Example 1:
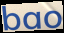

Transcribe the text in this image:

bao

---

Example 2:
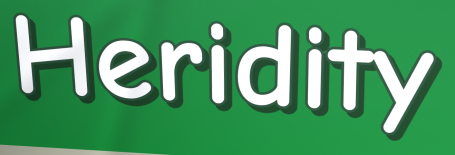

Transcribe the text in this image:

Heridity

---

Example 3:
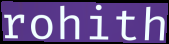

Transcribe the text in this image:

rohith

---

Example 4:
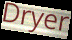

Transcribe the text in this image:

Dryer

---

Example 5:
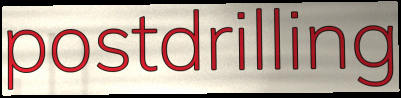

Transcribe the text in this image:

postdrilling